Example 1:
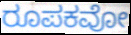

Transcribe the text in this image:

ರೂಪಕವೋ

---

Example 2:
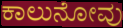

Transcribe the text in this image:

ಕಾಲುನೋವು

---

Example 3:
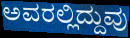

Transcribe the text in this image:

ಅವರಲ್ಲಿದ್ದುವು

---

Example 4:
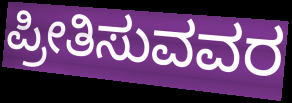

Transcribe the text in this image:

ಪ್ರೀತಿಸುವವರ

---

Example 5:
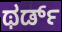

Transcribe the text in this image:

ಥರ್ಡ್